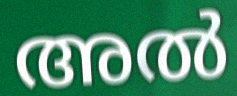
അൽ